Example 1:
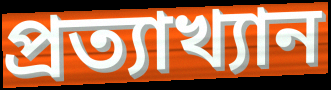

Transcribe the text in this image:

প্রত্যাখ্যান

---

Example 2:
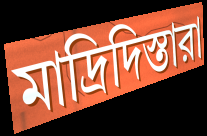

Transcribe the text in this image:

মাদ্রিদিস্তারা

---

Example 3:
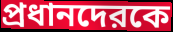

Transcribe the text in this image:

প্রধানদেরকে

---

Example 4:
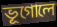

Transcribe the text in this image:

ভূগোলে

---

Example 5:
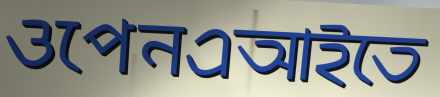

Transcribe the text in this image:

ওপেনএআইতে